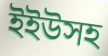
ইইউসহ